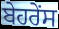
ਬੇਹਰੇਂਸ